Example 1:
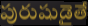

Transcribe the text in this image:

పురుషుడైతే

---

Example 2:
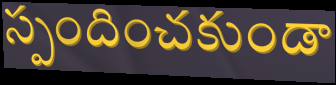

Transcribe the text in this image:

స్పందించకుండా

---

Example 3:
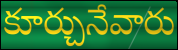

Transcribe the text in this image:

కూర్చునేవారు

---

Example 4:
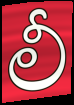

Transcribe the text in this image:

లీ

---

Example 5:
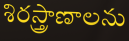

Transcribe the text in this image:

శిరస్త్రాణాలను